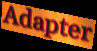
Adapter